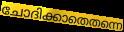
ചോദിക്കാതെതന്നെ